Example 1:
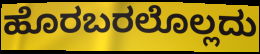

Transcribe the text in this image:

ಹೊರಬರಲೊಲ್ಲದು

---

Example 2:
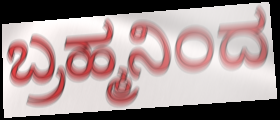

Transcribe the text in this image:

ಬ್ರಹ್ಮನಿಂದ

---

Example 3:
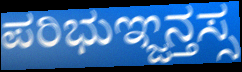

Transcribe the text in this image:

ಪರಿಭುಞ್ಜನ್ತಸ್ಸ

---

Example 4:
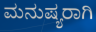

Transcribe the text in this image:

ಮನುಷ್ಯರಾಗಿ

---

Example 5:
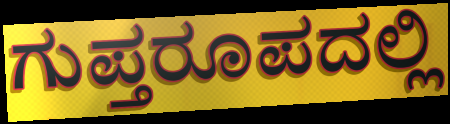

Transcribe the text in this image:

ಗುಪ್ತರೂಪದಲ್ಲಿ